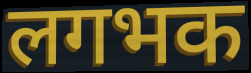
लगभक